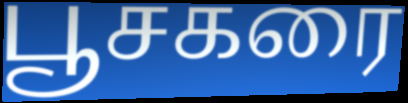
பூசகரை